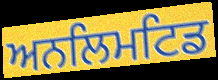
ਅਨਲਿਮਟਿਡ